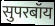
सुपरबॉय